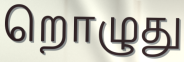
றொழுது